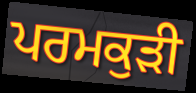
ਪਰਮਕੁੜੀ